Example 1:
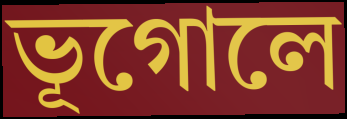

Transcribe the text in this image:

ভূগোলে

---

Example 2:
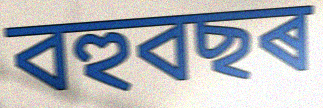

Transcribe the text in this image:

বহুবছৰ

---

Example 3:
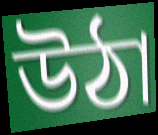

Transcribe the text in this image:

উঠা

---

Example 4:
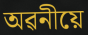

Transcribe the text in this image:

অৱনীয়ে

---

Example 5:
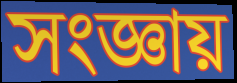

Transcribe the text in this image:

সংজ্ঞায়